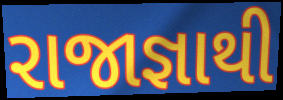
રાજાજ્ઞાથી